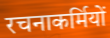
रचनाकर्मियों